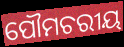
ପୌମଚରୀୟ